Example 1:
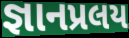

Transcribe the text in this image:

જ્ઞાનપ્રલય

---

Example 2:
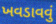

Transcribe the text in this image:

ખવડાવવું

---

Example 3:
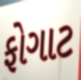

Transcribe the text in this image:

ફોગાટ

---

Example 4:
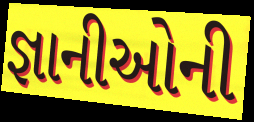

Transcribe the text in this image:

જ્ઞાનીઓની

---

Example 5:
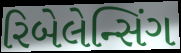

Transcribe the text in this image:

રિબેલેન્સિંગ